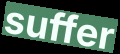
suffer